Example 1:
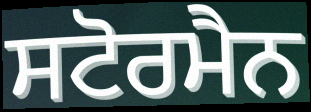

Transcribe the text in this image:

ਸਟੋਰਮੈਨ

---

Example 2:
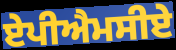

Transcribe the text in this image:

ਏਪੀਐਮਸੀਏ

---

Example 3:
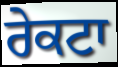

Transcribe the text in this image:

ਰੇਕਟਾ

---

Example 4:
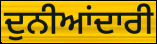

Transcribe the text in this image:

ਦੁਨੀਆਂਦਾਰੀ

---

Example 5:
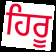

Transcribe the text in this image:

ਹਿਰੂ